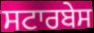
ਸਟਾਰਬੇਸ